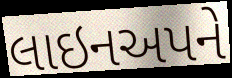
લાઇનઅપને